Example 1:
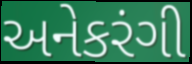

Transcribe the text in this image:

અનેકરંગી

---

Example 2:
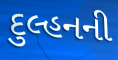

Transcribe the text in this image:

દુલ્હનની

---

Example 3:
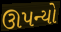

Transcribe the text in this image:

ઊપન્યો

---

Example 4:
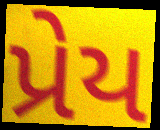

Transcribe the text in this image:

પ્રેય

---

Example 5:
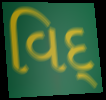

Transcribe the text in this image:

વિદ્